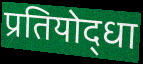
प्रतियोद्धा